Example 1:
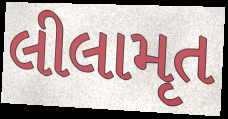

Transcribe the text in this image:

લીલામૃત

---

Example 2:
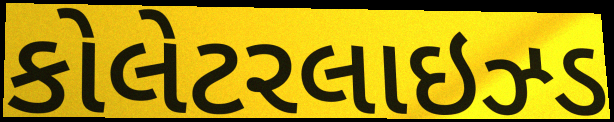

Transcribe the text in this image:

કોલેટરલાઇઝ્ડ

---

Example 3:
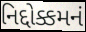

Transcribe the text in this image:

નિદ્દોક્કમનં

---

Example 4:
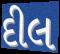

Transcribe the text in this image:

દીલ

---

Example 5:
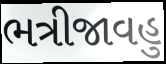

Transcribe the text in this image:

ભત્રીજાવહુ